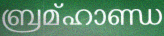
ബ്രമ്ഹാണ്ഡ